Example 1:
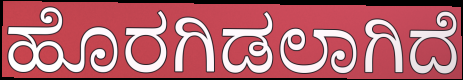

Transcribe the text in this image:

ಹೊರಗಿಡಲಾಗಿದೆ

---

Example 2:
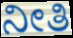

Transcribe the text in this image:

ನೀತಿ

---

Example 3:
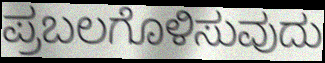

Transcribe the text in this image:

ಪ್ರಬಲಗೊಳಿಸುವುದು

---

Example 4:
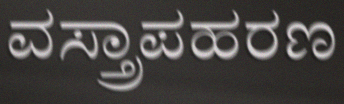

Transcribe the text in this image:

ವಸ್ತ್ರಾಪಹರಣ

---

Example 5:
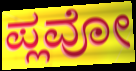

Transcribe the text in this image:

ಪ್ಲವೋ